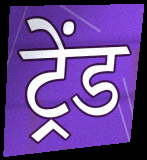
ट्रेंड